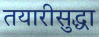
तयारीसुद्धा